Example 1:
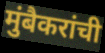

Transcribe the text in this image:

मुंबैकरांची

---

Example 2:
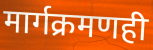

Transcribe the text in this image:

मार्गक्रमणही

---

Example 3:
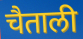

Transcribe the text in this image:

चैताली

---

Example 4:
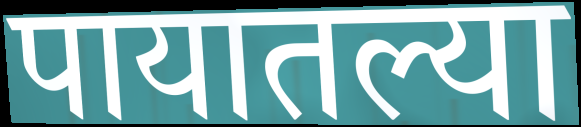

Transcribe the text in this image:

पायातल्या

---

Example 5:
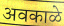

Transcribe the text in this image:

अवकाळे